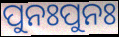
ପୁନଃପୁନଃ